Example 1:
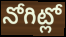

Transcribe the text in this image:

నోగిట్లో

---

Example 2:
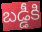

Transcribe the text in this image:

బడ్డీకి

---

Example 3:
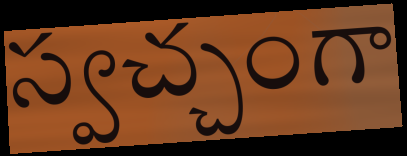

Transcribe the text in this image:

స్వచ్చంగా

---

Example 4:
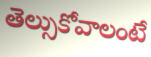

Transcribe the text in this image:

తెల్సుకోవాలంటే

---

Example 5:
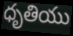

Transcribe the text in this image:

ధృతియు